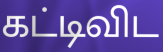
கட்டிவிட